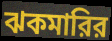
ঝকমারির